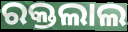
ରକ୍ତଲାଲ